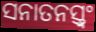
ସନାତନସ୍ତ୍ୱଂ